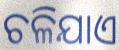
ଚଳିଯାଏ